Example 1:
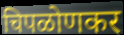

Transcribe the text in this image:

चिपळोणकर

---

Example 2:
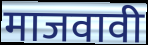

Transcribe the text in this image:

माजवावी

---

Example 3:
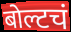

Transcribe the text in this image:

बोल्टचं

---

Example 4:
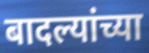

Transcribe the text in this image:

बादल्यांच्या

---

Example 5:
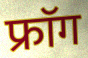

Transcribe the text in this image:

फ्रॉग